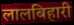
लालबिहारी